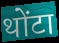
थोंटा